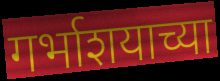
गर्भाशयाच्या